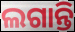
ଲଗାନ୍ତି